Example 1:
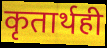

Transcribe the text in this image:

कृतार्थही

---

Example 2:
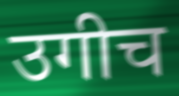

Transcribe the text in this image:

उगीच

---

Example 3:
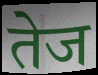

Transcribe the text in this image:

तेज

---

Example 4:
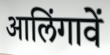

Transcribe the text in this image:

आलिंगावें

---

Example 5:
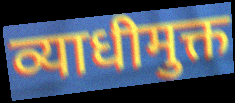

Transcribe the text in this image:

व्याधीमुक्त